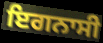
ਇਗਨਾਸੀ